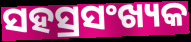
ସହସ୍ରସଂଖ୍ୟକ